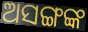
ଅସଙ୍ଗଙ୍କ